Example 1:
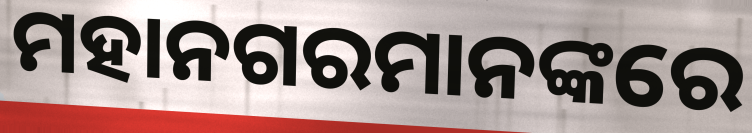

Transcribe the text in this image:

ମହାନଗରମାନଙ୍କରେ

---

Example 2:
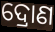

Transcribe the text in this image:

ଦ୍ରୋଣ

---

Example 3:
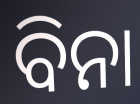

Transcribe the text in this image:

ବିନା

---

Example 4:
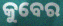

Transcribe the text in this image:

କୁବେର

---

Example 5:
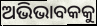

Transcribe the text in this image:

ଅଭିଭାବକକୁ